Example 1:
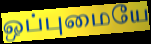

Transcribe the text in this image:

ஒப்புமையே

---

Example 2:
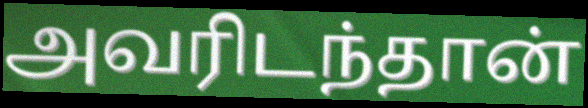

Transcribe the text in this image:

அவரிடந்தான்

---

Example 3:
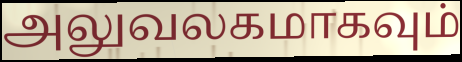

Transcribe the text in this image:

அலுவலகமாகவும்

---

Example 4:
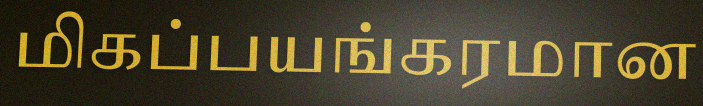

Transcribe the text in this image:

மிகப்பயங்கரமான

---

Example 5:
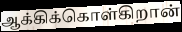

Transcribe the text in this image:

ஆக்கிக்கொள்கிறான்